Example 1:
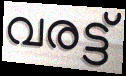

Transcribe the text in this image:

വരട്ട്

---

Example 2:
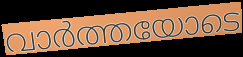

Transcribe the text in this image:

വാർത്തയോടെ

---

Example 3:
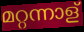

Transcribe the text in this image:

മറ്റന്നാള്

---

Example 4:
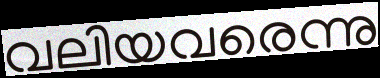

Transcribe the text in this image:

വലിയവരെന്നു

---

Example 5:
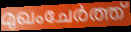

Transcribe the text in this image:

മുഖംചേർത്ത്